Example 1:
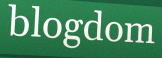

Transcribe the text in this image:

blogdom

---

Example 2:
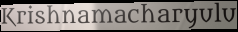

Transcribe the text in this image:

Krishnamacharyulu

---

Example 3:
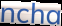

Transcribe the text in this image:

ncha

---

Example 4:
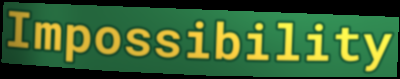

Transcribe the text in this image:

Impossibility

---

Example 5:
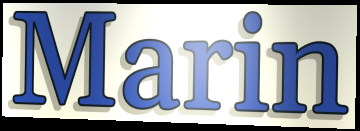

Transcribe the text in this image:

Marin